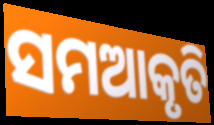
ସମଆକୃତି